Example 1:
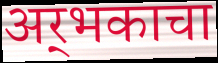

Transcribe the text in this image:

अर्भकाचा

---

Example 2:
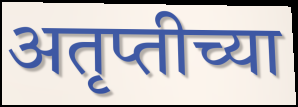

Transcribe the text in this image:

अतृप्तीच्या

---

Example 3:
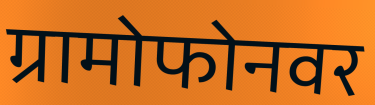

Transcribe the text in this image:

ग्रामोफोनवर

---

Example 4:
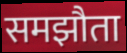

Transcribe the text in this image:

समझौता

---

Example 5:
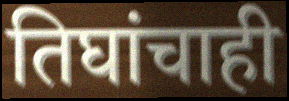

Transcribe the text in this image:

तिघांचाही